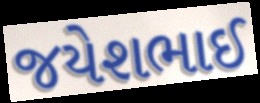
જયેશભાઈ